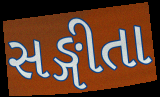
સઙ્ગીતા